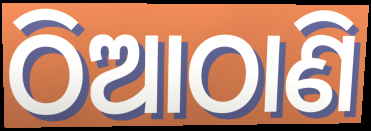
ଠିଆଠାଣି